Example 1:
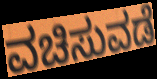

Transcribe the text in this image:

ವಚಿಸುವಡೆ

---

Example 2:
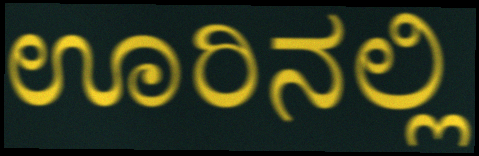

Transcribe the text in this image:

ಊರಿನಲ್ಲಿ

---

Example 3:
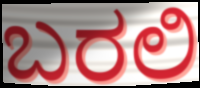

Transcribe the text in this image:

ಬರಲಿ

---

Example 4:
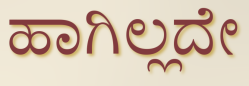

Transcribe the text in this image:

ಹಾಗಿಲ್ಲದೇ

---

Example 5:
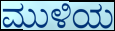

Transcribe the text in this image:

ಮುಳಿಯ